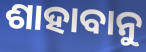
ଶାହାବାନୁ